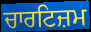
ਚਾਰਟਿਜ਼ਮ